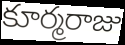
కూర్మరాజు